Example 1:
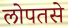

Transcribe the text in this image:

लोपतसे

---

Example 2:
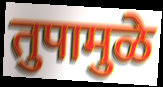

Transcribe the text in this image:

तुपामुळे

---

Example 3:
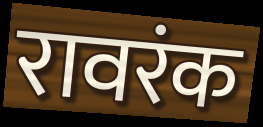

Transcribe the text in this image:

रावरंक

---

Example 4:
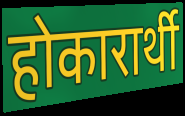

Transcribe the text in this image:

होकारार्थी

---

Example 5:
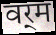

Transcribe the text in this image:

वर्म